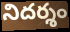
నిదర్శం